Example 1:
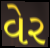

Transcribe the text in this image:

વેર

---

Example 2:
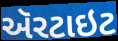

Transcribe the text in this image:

ઍરટાઇટ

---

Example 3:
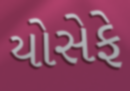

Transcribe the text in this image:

યોસેફે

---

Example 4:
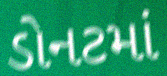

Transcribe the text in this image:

ડોનટમાં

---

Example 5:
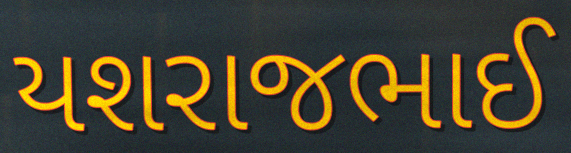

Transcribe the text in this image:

યશરાજભાઈ